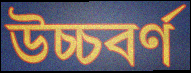
উচ্চবর্ণ